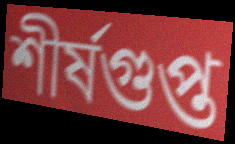
শীর্ষগুপ্ত